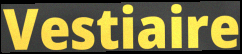
Vestiaire